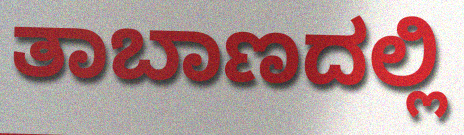
ತಾಬಾಣದಲ್ಲಿ